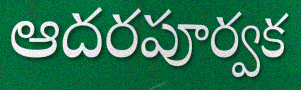
ఆదరపూర్వక